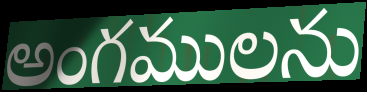
అంగములను